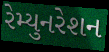
રેમ્યુનરેશન